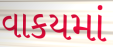
વાકયમાં